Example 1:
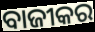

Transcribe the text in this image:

ବାଜୀକର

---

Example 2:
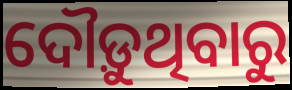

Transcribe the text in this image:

ଦୌଡ଼ୁଥିବାରୁ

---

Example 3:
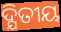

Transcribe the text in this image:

ଦ୍ଯିତୀୟ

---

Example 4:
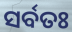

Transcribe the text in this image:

ସର୍ବତଃ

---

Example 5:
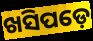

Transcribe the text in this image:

ଖସିପଡ଼େ